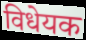
विधेयक